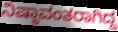
ನಿಷ್ಠಾವಂತರಾಗಿದ್ದ